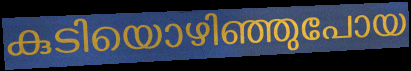
കുടിയൊഴിഞ്ഞുപോയ